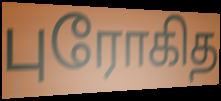
புரோகித